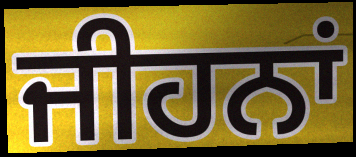
ਜੀਹਨਾਂ